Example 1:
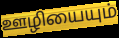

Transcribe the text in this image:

ஊழியையும்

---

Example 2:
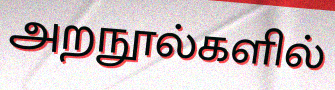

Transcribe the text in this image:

அறநூல்களில்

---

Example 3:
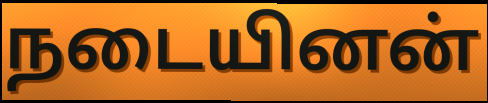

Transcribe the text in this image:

நடையினன்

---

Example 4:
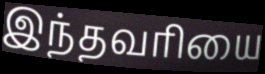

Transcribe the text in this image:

இந்தவரியை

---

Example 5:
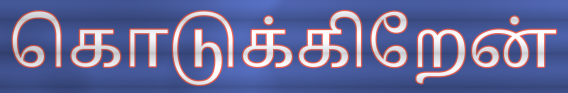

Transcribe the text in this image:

கொடுக்கிறேன்